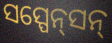
ସସ୍ପେନ୍‌ସନ୍